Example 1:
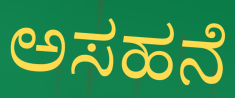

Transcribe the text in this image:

ಅಸಹನೆ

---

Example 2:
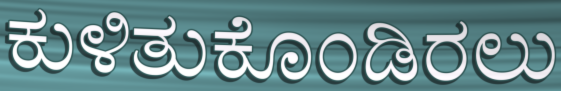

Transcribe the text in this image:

ಕುಳಿತುಕೊಂಡಿರಲು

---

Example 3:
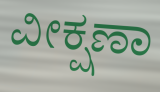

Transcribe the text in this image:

ವೀಕ್ಷಣಾ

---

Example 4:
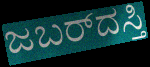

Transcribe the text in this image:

ಜಬರ್‌ದಸ್ತಿ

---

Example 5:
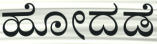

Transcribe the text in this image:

ಹೋದಡೆ